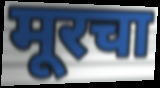
मूरचा